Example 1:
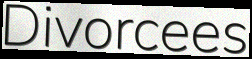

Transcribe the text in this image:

Divorcees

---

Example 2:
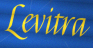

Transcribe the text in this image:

Levitra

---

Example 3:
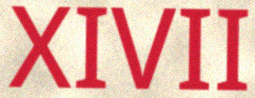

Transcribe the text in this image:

XIVII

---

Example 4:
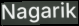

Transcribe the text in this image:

Nagarik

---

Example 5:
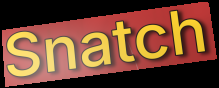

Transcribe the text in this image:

Snatch